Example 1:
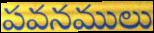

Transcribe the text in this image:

పవనములు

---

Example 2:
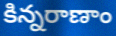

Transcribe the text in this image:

కిన్నరాణాం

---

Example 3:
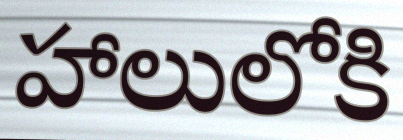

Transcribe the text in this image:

హాలులోకి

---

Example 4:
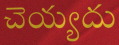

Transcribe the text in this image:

చెయ్యదు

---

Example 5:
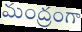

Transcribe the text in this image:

మంద్రంగా